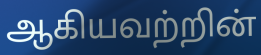
ஆகியவற்றின்